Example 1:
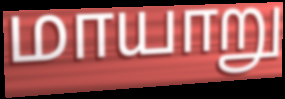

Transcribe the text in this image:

மாயாறு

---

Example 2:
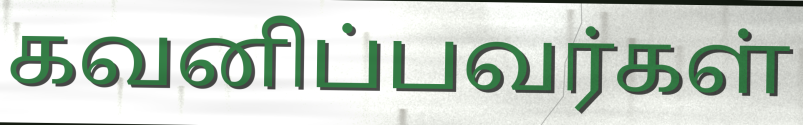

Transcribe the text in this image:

கவனிப்பவர்கள்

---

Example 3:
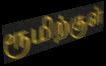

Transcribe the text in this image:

ரூமிற்குள்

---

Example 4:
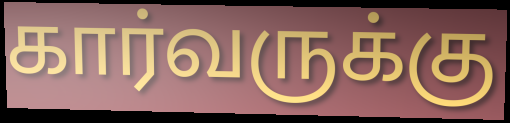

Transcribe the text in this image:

கார்வருக்கு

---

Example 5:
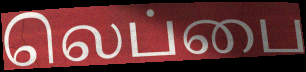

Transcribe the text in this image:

லெப்பை